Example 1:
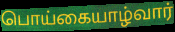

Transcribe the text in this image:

பொய்கையாழ்வார்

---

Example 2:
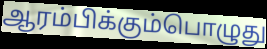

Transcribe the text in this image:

ஆரம்பிக்கும்பொழுது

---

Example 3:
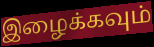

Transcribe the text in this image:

இழைக்கவும்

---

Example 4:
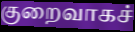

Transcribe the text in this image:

குறைவாகச்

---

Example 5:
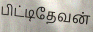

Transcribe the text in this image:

பிட்டிதேவன்